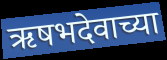
ऋषभदेवाच्या